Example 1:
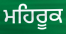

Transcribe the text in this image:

ਮਹਿਰੂਕ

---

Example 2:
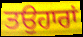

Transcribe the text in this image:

ਤਉਹਾਰਾਂ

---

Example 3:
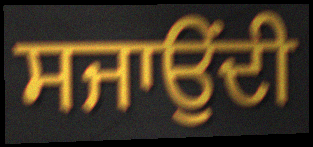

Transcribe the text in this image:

ਸਜਾਉਂਦੀ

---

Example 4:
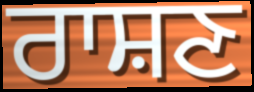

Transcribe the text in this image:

ਰਾਸ਼ਣ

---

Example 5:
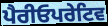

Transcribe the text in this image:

ਪੈਰੀਓਪਰੇਟਿਵ